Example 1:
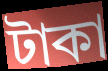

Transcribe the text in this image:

টাকা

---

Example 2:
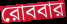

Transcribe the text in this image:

রোববার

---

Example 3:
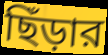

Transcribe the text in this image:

ছিঁড়ার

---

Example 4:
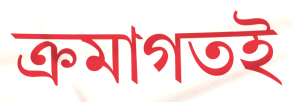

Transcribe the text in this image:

ক্রমাগতই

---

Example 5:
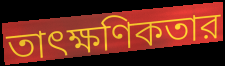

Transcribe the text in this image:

তাৎক্ষণিকতার